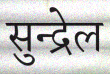
सुन्द्रेल